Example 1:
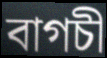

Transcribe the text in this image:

বাগচী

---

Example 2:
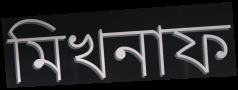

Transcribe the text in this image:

মিখনাফ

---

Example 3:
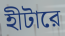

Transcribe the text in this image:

হীটারে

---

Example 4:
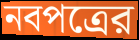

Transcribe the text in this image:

নবপত্রের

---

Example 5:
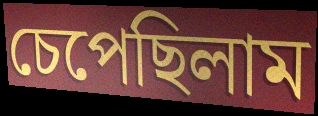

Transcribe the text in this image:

চেপেছিলাম